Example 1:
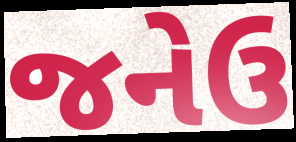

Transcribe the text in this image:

જનેઉ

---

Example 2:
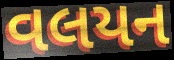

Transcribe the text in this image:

વલયન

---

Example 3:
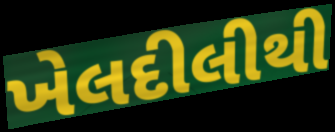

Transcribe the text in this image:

ખેલદીલીથી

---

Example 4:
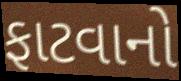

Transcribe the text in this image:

ફાટવાનો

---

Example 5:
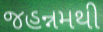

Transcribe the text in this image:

જહન્નમથી